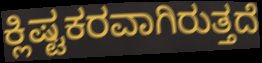
ಕ್ಲಿಷ್ಟಕರವಾಗಿರುತ್ತದೆ